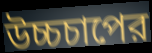
উচ্চচাপের